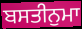
ਬਸਤੀਨੁਮਾ